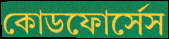
কোডফোর্সেস